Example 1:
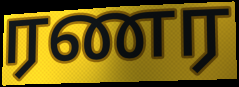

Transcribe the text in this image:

ரணர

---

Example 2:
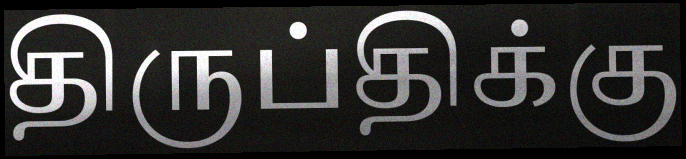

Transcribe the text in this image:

திருப்திக்கு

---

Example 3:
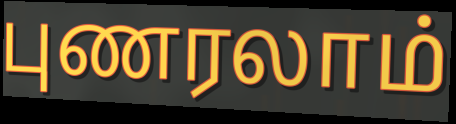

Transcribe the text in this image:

புணரலாம்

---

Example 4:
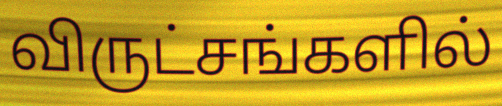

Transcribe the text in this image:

விருட்சங்களில்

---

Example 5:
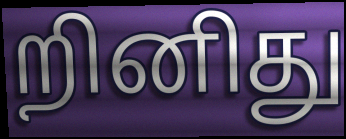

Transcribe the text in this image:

றினிது